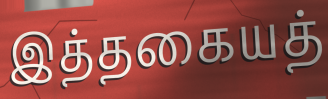
இத்தகையத்